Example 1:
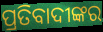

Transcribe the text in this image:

ପ୍ରତିବାଦୀଙ୍କର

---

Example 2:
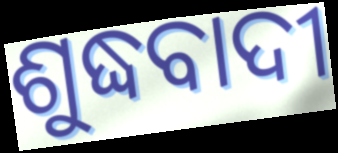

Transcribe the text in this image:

ଶୁଦ୍ଧବାଦୀ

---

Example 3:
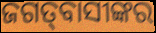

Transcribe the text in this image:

ଜଗତ୍‍ବାସୀଙ୍କର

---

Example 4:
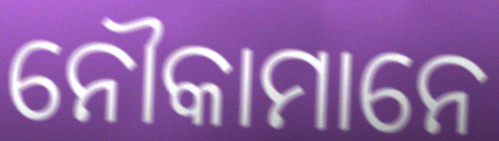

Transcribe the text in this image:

ନୌକାମାନେ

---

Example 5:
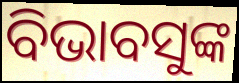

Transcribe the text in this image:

ବିଭାବସୁଙ୍କ